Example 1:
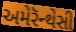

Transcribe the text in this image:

અમેરૅન્થેસી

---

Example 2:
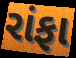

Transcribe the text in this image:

રાંફા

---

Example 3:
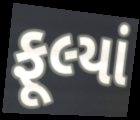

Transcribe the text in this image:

ફૂલ્યાં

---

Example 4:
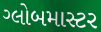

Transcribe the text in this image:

ગ્લોબમાસ્ટર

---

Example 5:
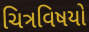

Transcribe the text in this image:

ચિત્રવિષયો